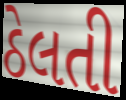
ઠેલતી